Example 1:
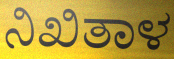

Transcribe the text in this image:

ನಿಖಿತಾಳ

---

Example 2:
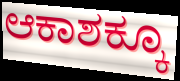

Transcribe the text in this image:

ಆಕಾಶಕ್ಕೂ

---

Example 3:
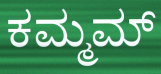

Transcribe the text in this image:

ಕಮ್ಮಮ್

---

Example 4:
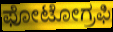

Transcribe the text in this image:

ಫೋಟೋಗ್ರಫಿ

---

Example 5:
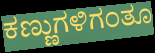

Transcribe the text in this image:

ಕಣ್ಣುಗಳಿಗಂತೂ